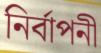
নির্বাপনী